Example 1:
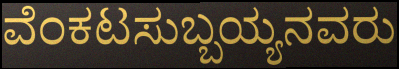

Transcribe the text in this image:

ವೆಂಕಟಸುಬ್ಬಯ್ಯನವರು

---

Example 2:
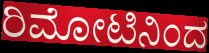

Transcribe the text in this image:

ರಿಮೋಟಿನಿಂದ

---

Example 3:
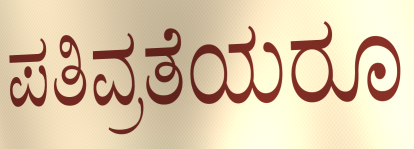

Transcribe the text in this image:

ಪತಿವ್ರತೆಯರೂ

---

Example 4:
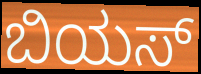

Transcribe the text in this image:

ಬಿಯಸ್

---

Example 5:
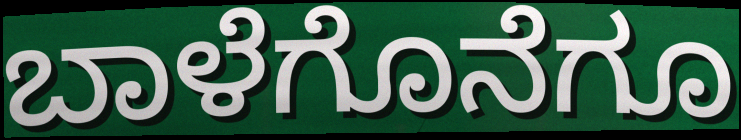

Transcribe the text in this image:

ಬಾಳೆಗೊನೆಗೂ